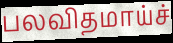
பலவிதமாய்ச்